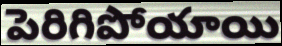
పెరిగిపోయాయి